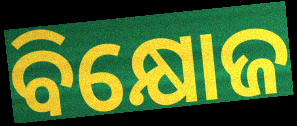
ବିକ୍ଷୋଜ